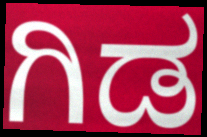
ಗಿಡ